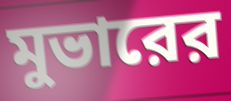
মুভারের